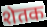
शेतक